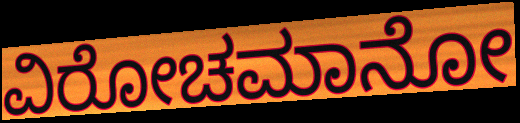
ವಿರೋಚಮಾನೋ